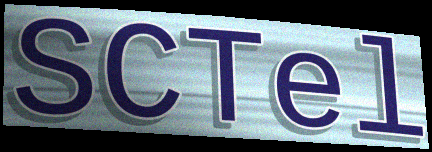
SCTel